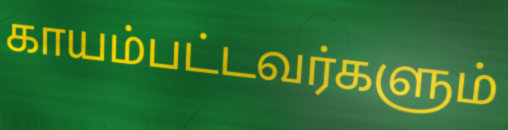
காயம்பட்டவர்களும்